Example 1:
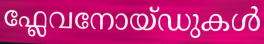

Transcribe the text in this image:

ഫ്ലേവനോയ്ഡുകൾ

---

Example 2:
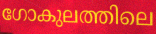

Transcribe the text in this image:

ഗോകുലത്തിലെ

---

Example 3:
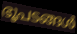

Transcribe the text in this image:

ഭൂപടങ്ങൾ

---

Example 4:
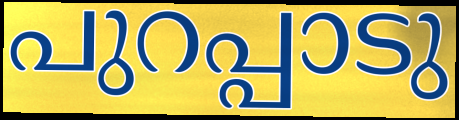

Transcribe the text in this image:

പുറപ്പാടു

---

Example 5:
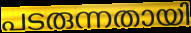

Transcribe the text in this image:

പടരുന്നതായി